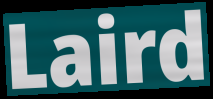
Laird